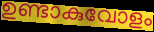
ഉണ്ടാകുവോളം